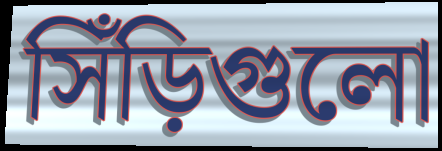
সিঁড়িগুলো